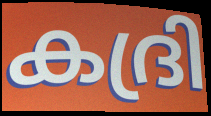
കദ്രി